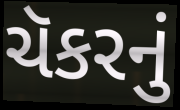
ચૅકરનું